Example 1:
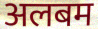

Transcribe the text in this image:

अलबम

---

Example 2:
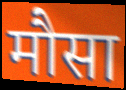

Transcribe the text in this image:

मौसा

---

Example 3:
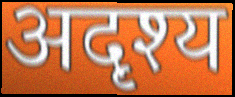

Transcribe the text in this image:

अदृश्य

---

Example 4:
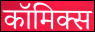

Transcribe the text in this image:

कॉमिक्स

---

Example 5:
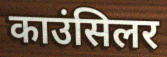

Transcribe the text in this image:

काउंसिलर